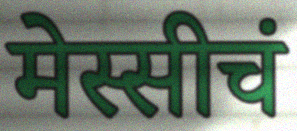
मेस्सीचं